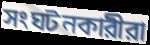
সংঘটনকারীরা